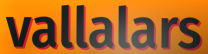
vallalars